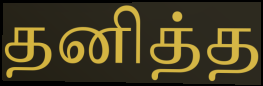
தனித்த